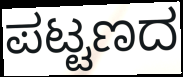
ಪಟ್ಟಣದ